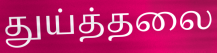
துய்த்தலை